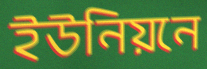
ইউনিয়নে